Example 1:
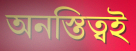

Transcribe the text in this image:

অনস্তিত্বই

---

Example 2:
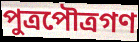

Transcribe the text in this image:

পুত্রপৌত্রগণ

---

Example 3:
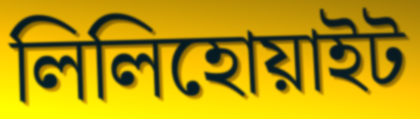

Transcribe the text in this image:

লিলিহোয়াইট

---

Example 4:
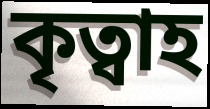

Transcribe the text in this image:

কৃত্বাহ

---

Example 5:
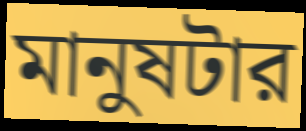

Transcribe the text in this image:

মানুষটার